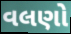
વલણો